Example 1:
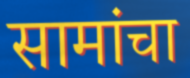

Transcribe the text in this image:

सामांचा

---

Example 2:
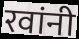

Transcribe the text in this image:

रवांनी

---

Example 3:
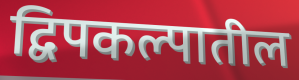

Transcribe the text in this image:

द्विपकल्पातील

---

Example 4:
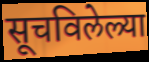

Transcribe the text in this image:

सूचविलेल्या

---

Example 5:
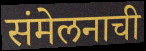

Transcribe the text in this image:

संमेलनाची